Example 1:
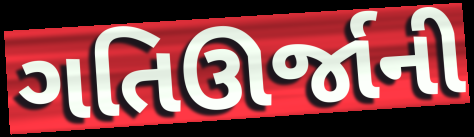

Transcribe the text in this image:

ગતિઊર્જાની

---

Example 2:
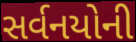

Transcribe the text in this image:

સર્વનયોની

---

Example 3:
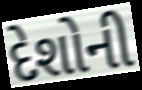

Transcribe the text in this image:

દેશોની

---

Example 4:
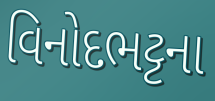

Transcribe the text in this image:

વિનોદભટ્ટના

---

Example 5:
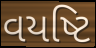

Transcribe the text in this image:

વયષ્ટિ